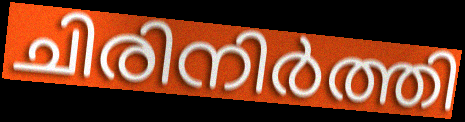
ചിരിനിർത്തി